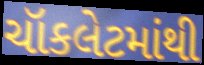
ચૉકલેટમાંથી